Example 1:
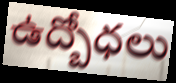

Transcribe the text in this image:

ఉద్బోధలు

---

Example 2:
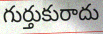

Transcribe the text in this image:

గుర్తుకురాదు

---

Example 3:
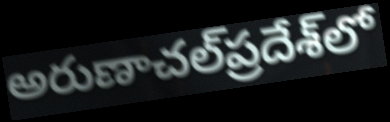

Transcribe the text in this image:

అరుణాచల్‌ప్రదేశ్‌లో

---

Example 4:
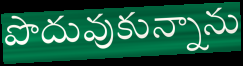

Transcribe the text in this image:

పొదువుకున్నాను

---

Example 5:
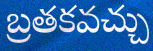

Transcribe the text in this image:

బ్రతకవచ్చు